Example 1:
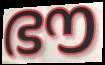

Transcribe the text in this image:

ഭൗ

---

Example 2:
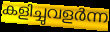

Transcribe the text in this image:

കളിച്ചുവളർന്ന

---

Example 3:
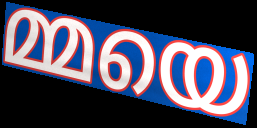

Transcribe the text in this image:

മ്മയെ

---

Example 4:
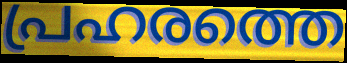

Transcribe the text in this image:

പ്രഹരത്തെ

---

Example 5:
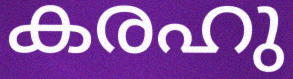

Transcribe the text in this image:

കരഹു